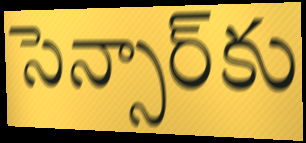
సెన్సార్‌కు